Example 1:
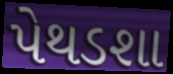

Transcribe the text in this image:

પેથડશા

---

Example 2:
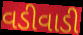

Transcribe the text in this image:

વડીવાડી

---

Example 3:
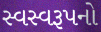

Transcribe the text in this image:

સ્વસ્વરૂપનો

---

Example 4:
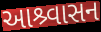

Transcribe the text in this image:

આશ્ર્વાસન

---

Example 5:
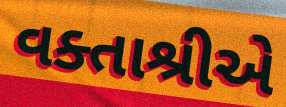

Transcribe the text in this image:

વક્તાશ્રીએ